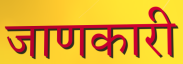
जाणकारी